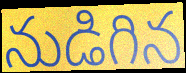
నుడిగిన